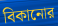
বিকানোর